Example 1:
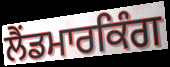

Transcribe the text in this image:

ਲੈਂਡਮਾਰਕਿੰਗ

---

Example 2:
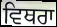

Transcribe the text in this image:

ਵਿਥਰਾ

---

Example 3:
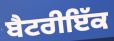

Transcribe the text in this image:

ਬੈਟਰੀਇੱਕ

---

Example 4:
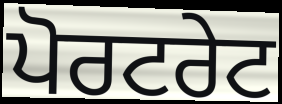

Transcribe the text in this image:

ਪੋਰਟਰੇਟ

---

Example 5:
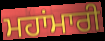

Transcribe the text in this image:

ਮਹਾਂਮਾਰੀ